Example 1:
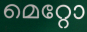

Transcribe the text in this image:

മെറ്റോ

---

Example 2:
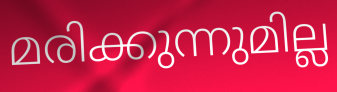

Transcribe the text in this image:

മരിക്കുന്നുമില്ല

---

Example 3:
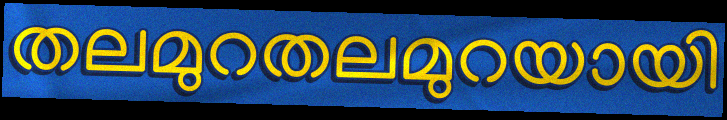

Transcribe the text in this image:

തലമുറതലമുറയായി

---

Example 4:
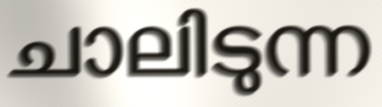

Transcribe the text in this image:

ചാലിടുന്ന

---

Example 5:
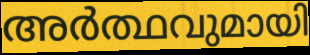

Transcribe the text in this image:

അർത്ഥവുമായി